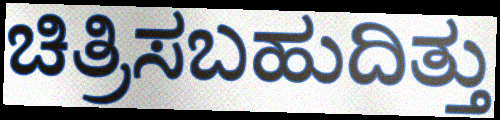
ಚಿತ್ರಿಸಬಹುದಿತ್ತು